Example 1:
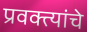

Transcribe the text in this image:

प्रवक्त्यांचे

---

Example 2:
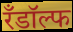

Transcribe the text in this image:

रँडॉल्फ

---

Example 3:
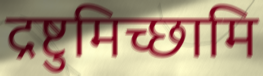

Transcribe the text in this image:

द्रष्टुमिच्छामि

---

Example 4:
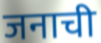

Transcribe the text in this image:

जनाची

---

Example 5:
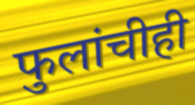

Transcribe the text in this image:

फुलांचीही